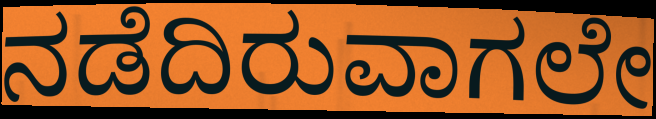
ನಡೆದಿರುವಾಗಲೇ